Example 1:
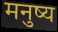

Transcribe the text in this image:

मनुष्‍य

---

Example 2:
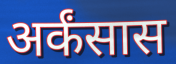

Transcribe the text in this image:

अर्कंसास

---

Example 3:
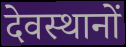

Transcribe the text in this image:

देवस्थानों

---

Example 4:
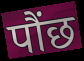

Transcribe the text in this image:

पौंछ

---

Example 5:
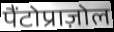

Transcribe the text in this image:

पैंटोप्राज़ोल